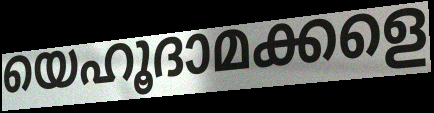
യെഹൂദാമക്കളെ